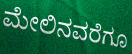
ಮೇಲಿನವರೆಗೂ